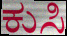
ಕುಸಿ